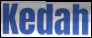
Kedah